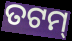
ତଟମ୍